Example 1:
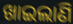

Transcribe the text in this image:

ଖାଇଲାଣି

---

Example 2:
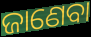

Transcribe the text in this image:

ଜାଣେବା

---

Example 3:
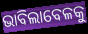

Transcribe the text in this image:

ଭାବିଲାବେଳକୁ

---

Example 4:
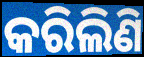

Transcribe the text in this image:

କରିଲିଣି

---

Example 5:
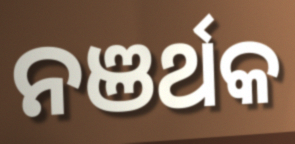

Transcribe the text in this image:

ନଞର୍ଥକ